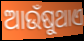
ଆଉଁଷୁଥାଏ